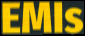
EMIs